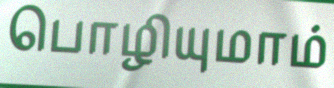
பொழியுமாம்